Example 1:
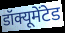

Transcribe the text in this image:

डॉक्यूमेंटेड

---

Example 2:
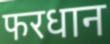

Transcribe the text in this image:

फरधान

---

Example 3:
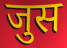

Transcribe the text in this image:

जुस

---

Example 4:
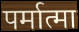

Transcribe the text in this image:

पर्मात्मा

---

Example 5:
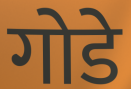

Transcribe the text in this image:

गोडे